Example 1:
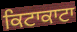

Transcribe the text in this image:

ਕਿਟਾਕਾਟਾ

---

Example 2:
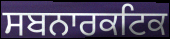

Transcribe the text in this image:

ਸਬਨਾਰਕਟਿਕ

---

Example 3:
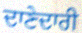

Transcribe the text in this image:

ਦਾਣੇਦਾਰੀ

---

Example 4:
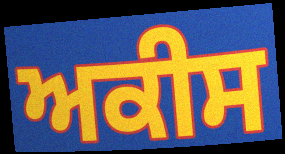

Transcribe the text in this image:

ਅਕੀਸ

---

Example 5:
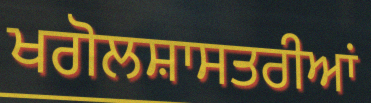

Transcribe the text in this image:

ਖਗੋਲਸ਼ਾਸਤਰੀਆਂ